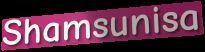
Shamsunisa